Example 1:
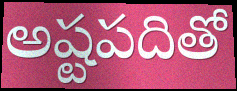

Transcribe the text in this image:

అష్టపదితో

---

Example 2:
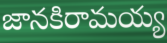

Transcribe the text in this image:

జానకిరామయ్య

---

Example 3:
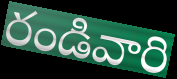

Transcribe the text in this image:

రండివారి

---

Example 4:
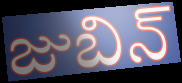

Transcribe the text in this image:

జుబిన్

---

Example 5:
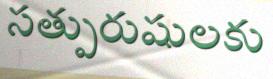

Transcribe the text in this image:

సత్పురుషులకు